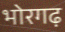
भोरगढ़